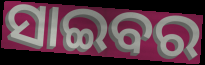
ସାଇବର